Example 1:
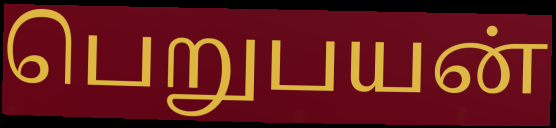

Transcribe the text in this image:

பெறுபயன்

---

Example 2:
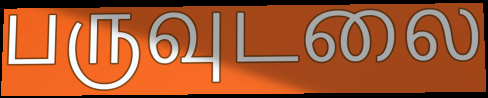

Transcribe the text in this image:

பருவுடலை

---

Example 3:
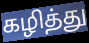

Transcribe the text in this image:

கழித்து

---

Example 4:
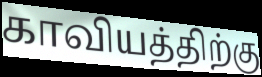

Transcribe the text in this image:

காவியத்திற்கு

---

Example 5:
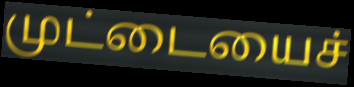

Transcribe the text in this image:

முட்டையைச்